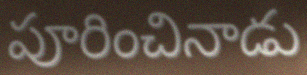
పూరించినాడు